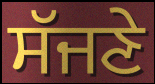
ਸੱਜਣੇ